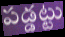
పడ్డట్టు